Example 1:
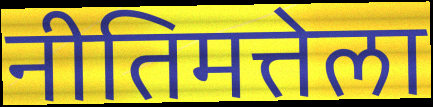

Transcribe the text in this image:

नीतिमत्तेला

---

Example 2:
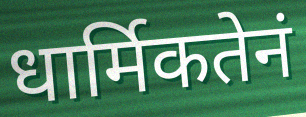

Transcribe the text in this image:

धार्मिकतेनं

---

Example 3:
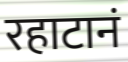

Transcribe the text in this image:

रहाटानं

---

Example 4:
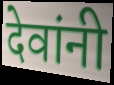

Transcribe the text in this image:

देवांनी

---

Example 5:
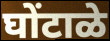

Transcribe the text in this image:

घोंटाळे